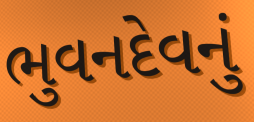
ભુવનદેવનું